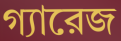
গ্যারেজ